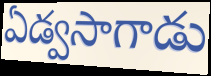
ఏడ్వసాగాడు